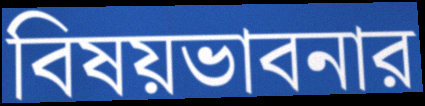
বিষয়ভাবনার